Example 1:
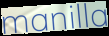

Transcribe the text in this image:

manilla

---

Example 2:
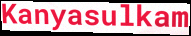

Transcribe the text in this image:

Kanyasulkam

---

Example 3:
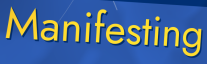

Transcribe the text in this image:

Manifesting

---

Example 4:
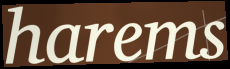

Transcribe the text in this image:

harems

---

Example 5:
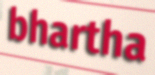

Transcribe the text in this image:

bhartha